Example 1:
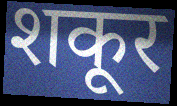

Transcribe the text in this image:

शकूर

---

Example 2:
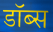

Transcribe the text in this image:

डॉब्स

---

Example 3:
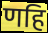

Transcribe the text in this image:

णहि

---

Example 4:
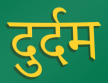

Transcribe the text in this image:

दुर्दम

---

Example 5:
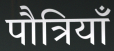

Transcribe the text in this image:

पौत्रियाँ